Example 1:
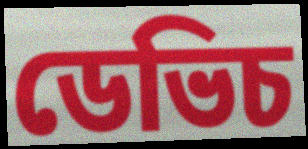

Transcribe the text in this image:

ডেভিচ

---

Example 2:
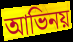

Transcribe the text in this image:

আভিনয়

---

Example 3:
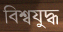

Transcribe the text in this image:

বিশ্বযুদ্ধ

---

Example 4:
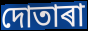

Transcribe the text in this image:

দোতাৰা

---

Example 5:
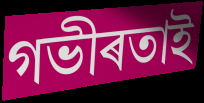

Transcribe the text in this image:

গভীৰতাই